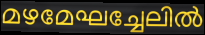
മഴമേഘച്ചേലിൽ